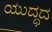
ಯುದ್ಧದ